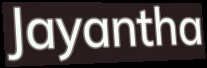
Jayantha